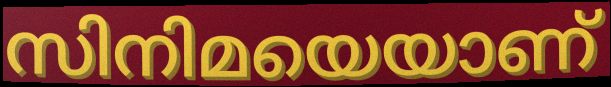
സിനിമയെയാണ്